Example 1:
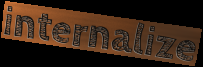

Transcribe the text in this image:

internalize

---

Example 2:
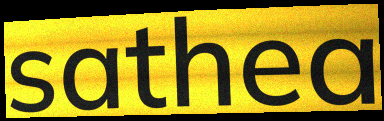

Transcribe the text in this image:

sathea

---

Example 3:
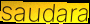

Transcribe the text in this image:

saudara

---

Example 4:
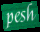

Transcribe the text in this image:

pesh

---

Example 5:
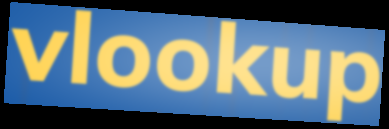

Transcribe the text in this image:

vlookup